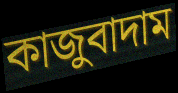
কাজুবাদাম